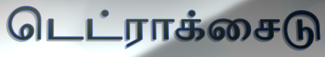
டெட்ராக்சைடு